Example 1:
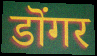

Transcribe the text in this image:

डॊंगर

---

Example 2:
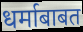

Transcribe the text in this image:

धर्माबाबत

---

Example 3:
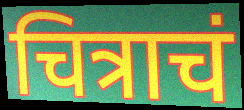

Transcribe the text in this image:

चित्राचं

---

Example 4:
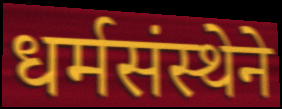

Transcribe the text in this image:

धर्मसंस्थेने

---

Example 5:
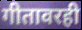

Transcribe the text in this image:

गीतावरही